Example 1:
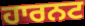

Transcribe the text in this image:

ਹਾਰਨਟ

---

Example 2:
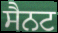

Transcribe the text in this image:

ਸੈਨਟ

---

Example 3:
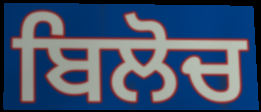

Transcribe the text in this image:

ਬਿਲੋਚ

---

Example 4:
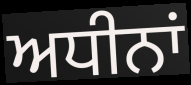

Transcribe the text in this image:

ਅਧੀਨਾਂ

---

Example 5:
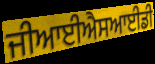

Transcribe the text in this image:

ਜੀਆਈਐਸਆਈਡੀ